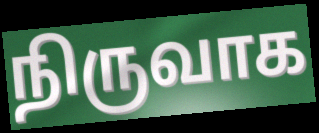
நிருவாக